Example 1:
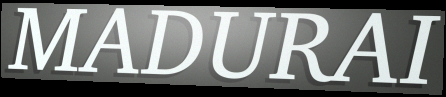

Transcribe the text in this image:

MADURAI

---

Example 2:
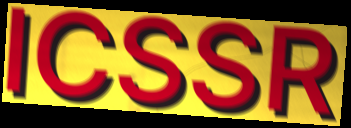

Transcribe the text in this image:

ICSSR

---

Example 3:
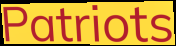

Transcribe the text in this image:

Patriots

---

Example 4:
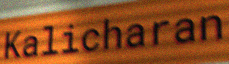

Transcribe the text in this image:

Kalicharan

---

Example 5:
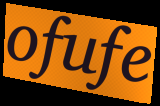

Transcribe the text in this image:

ofufe